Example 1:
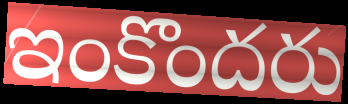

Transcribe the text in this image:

ఇంకొందరు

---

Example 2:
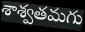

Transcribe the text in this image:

శాశ్వతమగు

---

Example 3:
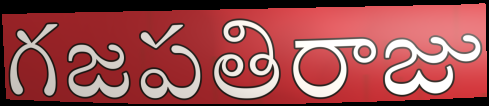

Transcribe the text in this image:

గజపతిరాజు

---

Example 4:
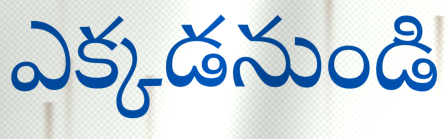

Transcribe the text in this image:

ఎక్కడనుండి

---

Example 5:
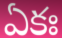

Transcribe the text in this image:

ఏకః